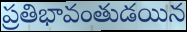
ప్రతిభావంతుడయిన